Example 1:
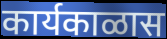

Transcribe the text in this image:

कार्यकाळास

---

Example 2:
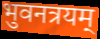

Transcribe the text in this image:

भुवनत्रयम्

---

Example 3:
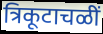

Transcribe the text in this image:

त्रिकूटाचळीं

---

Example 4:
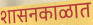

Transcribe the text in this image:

शासनकाळात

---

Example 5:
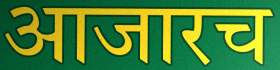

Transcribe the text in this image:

आजारच